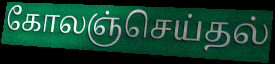
கோலஞ்செய்தல்